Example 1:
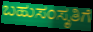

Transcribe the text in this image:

ಬಹುಸಂಸ್ಕೃತಿಗೆ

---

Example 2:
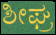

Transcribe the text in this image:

ಶೀಘ್ರ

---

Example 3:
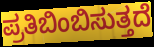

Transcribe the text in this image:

ಪ್ರತಿಬಿಂಬಿಸುತ್ತದೆ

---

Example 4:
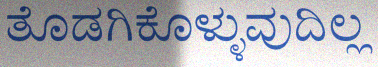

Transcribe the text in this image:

ತೊಡಗಿಕೊಳ್ಳುವುದಿಲ್ಲ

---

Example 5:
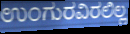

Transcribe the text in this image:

ಉಂಗುರವಿರಲಿಲ್ಲ